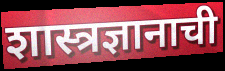
शास्त्रज्ञानाची